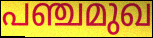
പഞ്ചമുഖ